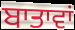
ਬਾਤਾਵਾਂ